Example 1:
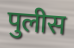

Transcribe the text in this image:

पुलीस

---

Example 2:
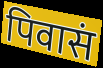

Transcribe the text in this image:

पिवासं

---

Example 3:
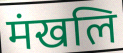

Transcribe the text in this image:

मंखलि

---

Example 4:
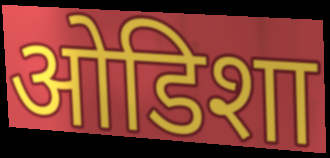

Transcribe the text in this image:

ओडिशा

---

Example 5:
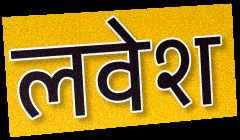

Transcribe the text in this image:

लवेश